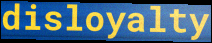
disloyalty